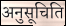
अनुसूचिति